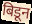
बिडून